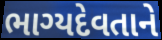
ભાગ્યદેવતાને